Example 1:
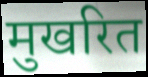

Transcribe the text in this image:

मुखरित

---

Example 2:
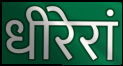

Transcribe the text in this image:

धीरेरां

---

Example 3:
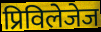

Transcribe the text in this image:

प्रिविलेजेज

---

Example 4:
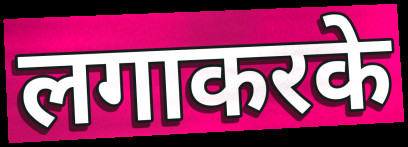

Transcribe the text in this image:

लगाकरके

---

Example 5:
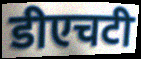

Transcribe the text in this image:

डीएचटी